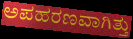
ಅಪಹರಣವಾಗಿತ್ತು